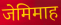
जेमिमाह